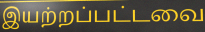
இயற்றப்பட்டவை